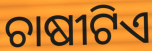
ଚାଷୀଟିଏ